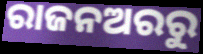
ରାଜନଅରରୁ